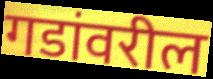
गडांवरील